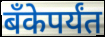
बॅंकेपर्यंत